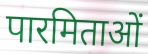
पारमिताओं